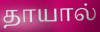
தாயால்